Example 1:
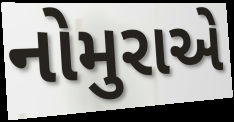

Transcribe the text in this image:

નોમુરાએ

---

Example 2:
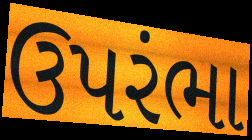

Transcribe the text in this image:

ઉપરંભા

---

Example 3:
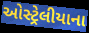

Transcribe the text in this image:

ઓસ્ટ્રેલીયાના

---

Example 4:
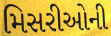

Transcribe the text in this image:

મિસરીઓની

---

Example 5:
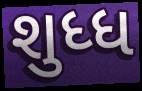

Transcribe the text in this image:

શુધ્ધ